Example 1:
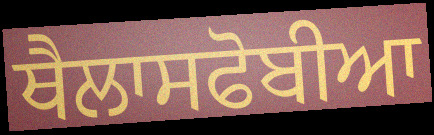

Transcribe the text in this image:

ਥੈਲਾਸਫੋਬੀਆ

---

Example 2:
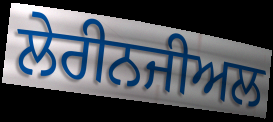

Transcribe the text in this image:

ਲੇਰੀਨਜੀਅਲ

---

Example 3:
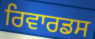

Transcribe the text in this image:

ਰਿਵਾਰਡਸ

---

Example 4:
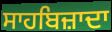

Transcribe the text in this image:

ਸਾਹਬਿਜ਼ਾਦਾ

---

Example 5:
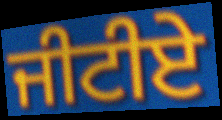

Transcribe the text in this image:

ਜੀਟੀਏ